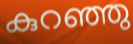
കുറഞ്ഞു